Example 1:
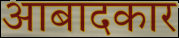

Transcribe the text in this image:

आबादकार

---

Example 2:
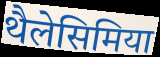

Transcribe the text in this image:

थैलेसिमिया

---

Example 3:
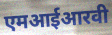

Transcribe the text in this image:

एमआईआरवी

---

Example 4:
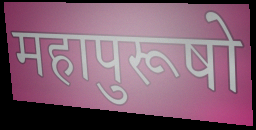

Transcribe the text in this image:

महापुरूषो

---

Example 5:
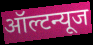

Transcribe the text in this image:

ऑल्टन्यूज